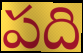
పది